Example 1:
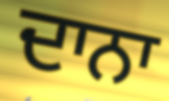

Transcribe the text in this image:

ਦਾਨਾ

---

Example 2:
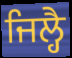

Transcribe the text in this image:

ਜਿਲ੍ਹੈ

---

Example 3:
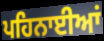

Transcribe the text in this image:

ਪਹਿਨਾਈਆਂ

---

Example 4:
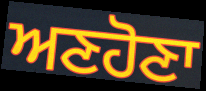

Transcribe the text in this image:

ਅਣਹੋਣਾ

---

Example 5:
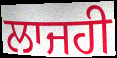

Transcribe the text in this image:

ਲਾਜਹੀ